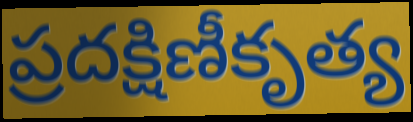
ప్రదక్షిణీకృత్య